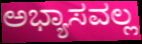
ಅಭ್ಯಾಸವಲ್ಲ